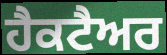
ਹੈਕਟੈਅਰ